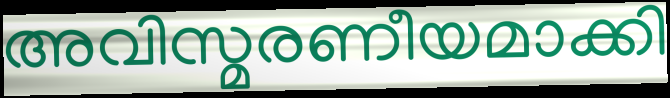
അവിസ്മരണീയമാക്കി